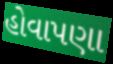
હોવાપણા